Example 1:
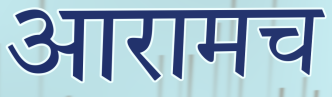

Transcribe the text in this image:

आरामच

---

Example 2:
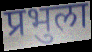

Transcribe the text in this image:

प्रभुला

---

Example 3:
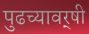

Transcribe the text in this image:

पुढच्यावर्षी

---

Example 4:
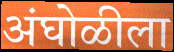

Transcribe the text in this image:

अंघोळीला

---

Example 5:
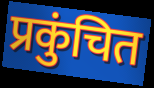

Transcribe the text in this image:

प्रकुंचित